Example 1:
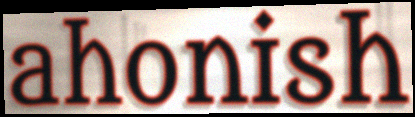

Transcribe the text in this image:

ahonish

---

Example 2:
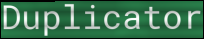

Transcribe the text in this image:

Duplicator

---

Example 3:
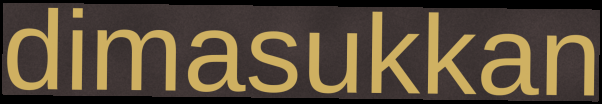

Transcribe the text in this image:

dimasukkan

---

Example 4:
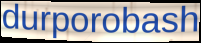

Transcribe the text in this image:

durporobash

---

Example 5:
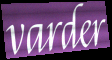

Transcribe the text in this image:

varder